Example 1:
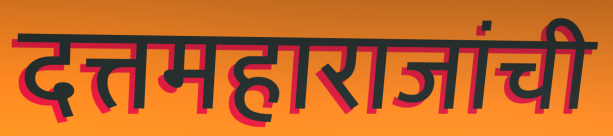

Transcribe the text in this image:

दत्तमहाराजांची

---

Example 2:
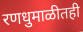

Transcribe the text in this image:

रणधुमाळीतही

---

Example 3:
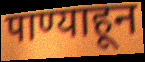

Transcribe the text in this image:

पाण्याहून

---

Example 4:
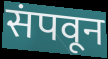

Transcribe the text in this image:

संपवून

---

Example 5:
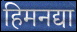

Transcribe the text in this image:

हिमनद्या